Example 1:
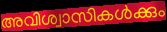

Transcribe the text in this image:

അവിശ്വാസികൾക്കും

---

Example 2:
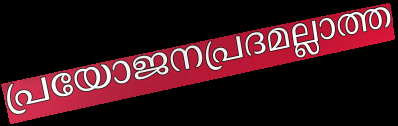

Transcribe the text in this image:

പ്രയോജനപ്രദമല്ലാത്ത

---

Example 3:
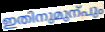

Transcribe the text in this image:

ഇതിനുമുന്പും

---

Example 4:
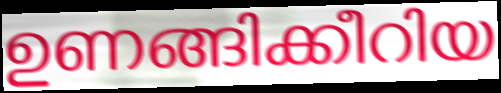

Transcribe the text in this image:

ഉണങ്ങിക്കീറിയ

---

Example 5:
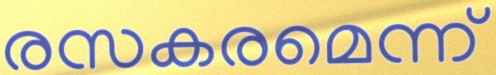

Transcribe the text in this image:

രസകരമെന്ന്